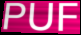
PUF